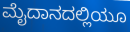
ಮೈದಾನದಲ್ಲಿಯೂ